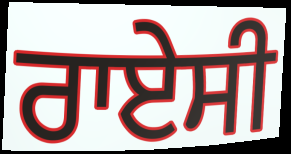
ਰਾਏਸੀ